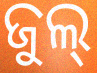
ଜୁଲ୍